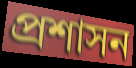
প্ৰশাসন